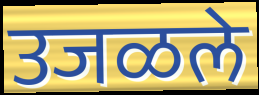
उजळले